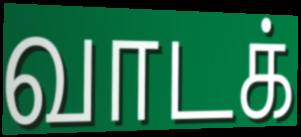
வாடக்